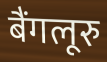
बैंगलूरु